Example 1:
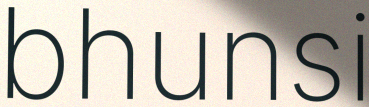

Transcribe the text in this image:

bhunsi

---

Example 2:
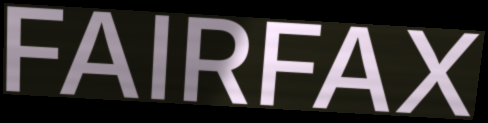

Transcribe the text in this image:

FAIRFAX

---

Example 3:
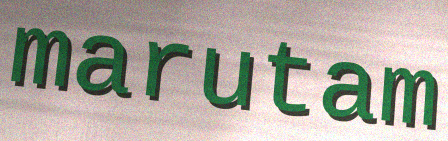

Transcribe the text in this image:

marutam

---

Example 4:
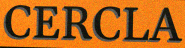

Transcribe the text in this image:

CERCLA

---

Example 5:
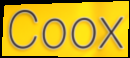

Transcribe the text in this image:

Coox